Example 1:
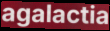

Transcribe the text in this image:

agalactia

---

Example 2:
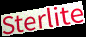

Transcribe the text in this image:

Sterlite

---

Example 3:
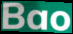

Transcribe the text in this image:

Bao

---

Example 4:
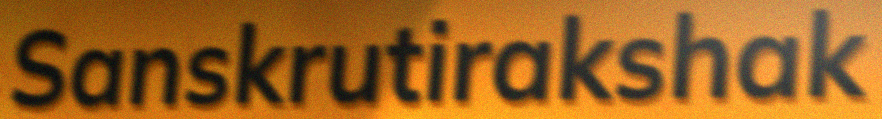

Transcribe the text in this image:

Sanskrutirakshak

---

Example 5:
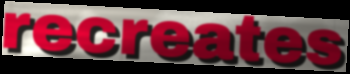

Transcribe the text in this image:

recreates